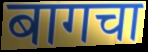
बागचा